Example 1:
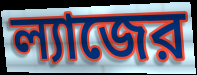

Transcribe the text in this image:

ল্যাজের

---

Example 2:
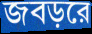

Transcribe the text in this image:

জবড়রে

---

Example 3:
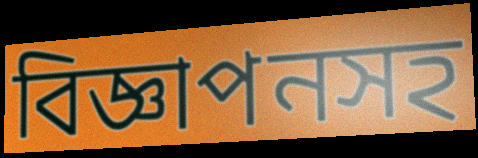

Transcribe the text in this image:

বিজ্ঞাপনসহ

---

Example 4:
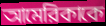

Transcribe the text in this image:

আমেরিকাকে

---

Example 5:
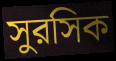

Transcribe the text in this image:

সুরসিক